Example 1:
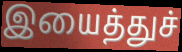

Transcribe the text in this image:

இயைத்துச்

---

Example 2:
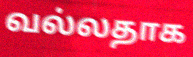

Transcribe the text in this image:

வல்லதாக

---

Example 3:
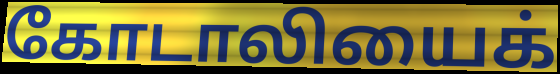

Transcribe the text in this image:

கோடாலியைக்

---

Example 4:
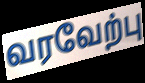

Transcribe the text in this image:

வரவேற்பு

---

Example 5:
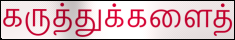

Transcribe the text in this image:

கருத்துக்களைத்